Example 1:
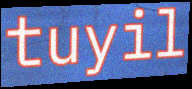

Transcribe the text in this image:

tuyil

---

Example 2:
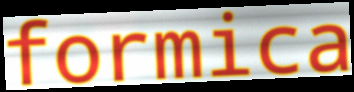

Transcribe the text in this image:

formica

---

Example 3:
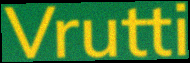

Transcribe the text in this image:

Vrutti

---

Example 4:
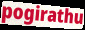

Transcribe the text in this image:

pogirathu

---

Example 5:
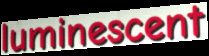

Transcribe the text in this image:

luminescent